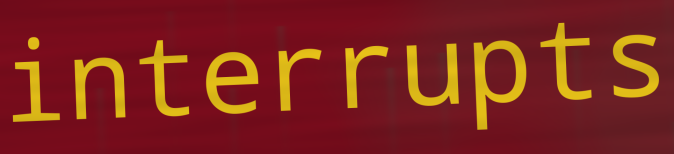
interrupts